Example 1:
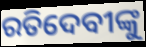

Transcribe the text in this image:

ରତିଦେବୀଙ୍କୁ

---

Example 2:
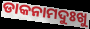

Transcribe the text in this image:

ଡାକନାମଦୁଃଖୁ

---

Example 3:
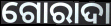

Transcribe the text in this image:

ଗୋରାଦା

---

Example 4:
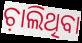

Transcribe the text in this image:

ଚ଼ାଲିଥିବା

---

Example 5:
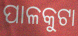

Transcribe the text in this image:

ପାଳକୁଟା